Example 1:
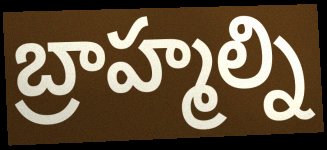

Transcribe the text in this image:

బ్రాహ్మల్ని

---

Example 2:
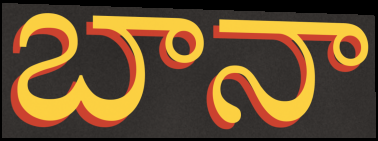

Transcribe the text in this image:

బానా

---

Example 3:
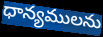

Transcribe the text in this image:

ధాన్యములను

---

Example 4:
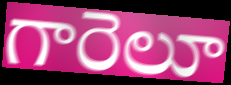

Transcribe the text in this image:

గారెలూ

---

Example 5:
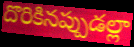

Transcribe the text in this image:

దొరికినప్పుడల్లా